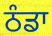
ਠੰਡਾ